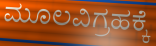
ಮೂಲವಿಗ್ರಹಕ್ಕೆ